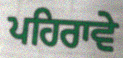
ਪਹਿਰਾਵੇ